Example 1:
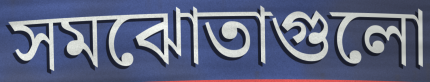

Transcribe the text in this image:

সমঝোতাগুলো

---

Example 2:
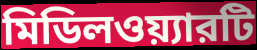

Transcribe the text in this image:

মিডিলওয়্যারটি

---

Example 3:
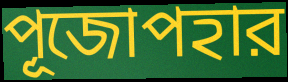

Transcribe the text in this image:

পূজোপহার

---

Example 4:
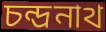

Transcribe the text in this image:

চন্দ্রনাথ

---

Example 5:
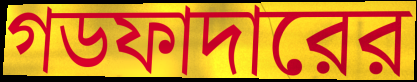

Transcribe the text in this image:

গডফাদারের